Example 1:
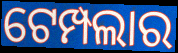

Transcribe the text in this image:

ଟେମ୍ପଲାର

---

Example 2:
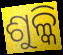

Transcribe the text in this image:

ଶୁଳ୍କି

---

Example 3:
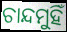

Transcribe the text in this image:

ଚାନ୍ଦମୁହିଁ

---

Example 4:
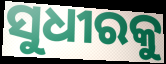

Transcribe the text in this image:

ସୁଧୀରକୁ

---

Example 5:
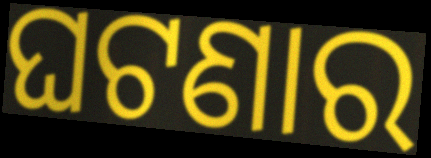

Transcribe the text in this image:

ଘଟଣାର